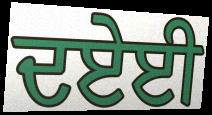
ਦਏਈ